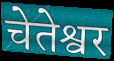
चेतेश्वर